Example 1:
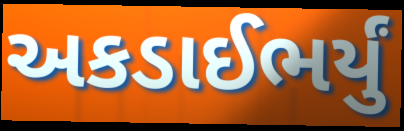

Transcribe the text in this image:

અકડાઈભર્યું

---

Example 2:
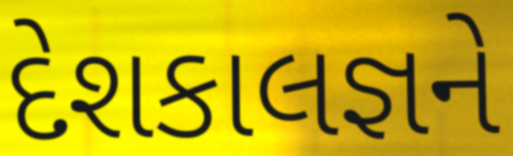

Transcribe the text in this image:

દેશકાલજ્ઞને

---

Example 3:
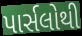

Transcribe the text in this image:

પાર્સલોથી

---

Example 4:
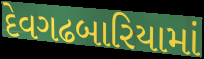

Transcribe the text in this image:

દેવગઢબારિયામાં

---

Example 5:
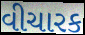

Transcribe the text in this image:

વીચારક